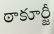
ఠాకూర్జీ